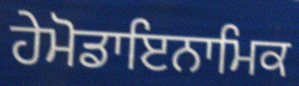
ਹੇਮੋਡਾਇਨਾਮਿਕ